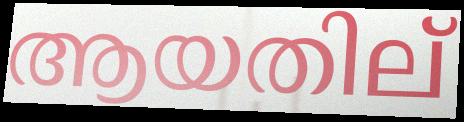
ആയതില്